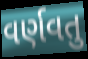
વર્ણવતુ